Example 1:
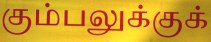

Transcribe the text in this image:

கும்பலுக்குக்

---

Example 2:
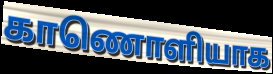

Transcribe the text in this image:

காணொளியாக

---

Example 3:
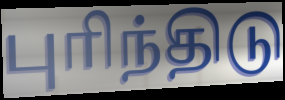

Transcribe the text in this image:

புரிந்திடு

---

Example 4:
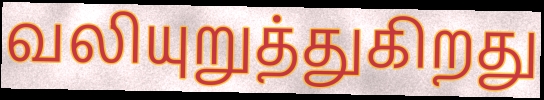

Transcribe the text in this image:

வலியுறுத்துகிறது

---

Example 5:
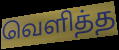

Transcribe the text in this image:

வெளித்த